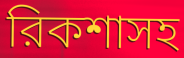
রিকশাসহ